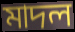
মাদল